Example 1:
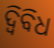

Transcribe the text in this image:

ଦ୍ଵିବିଧ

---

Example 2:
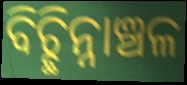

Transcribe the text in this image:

ବିଚ୍ଛିନ୍ନାଞ୍ଚଳ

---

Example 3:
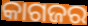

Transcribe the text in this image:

କାଗଜର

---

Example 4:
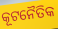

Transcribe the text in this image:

କୂଟନୈତିକ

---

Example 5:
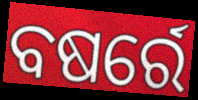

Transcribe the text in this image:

ବଷର୍ରେ